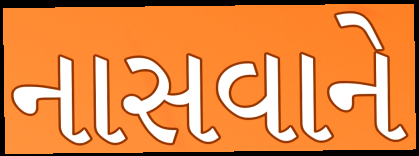
નાસવાને